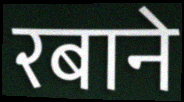
रबाने